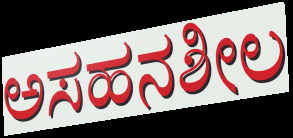
ಅಸಹನಶೀಲ